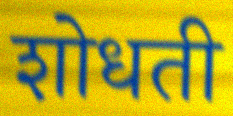
शोधती